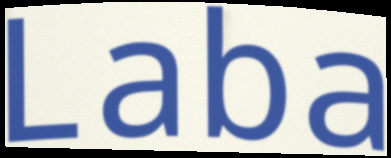
Laba